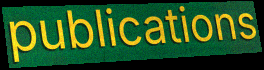
publications